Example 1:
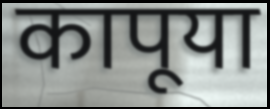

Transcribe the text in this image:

कापूया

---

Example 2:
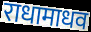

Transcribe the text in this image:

राधामाधव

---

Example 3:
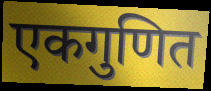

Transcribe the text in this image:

एकगुणित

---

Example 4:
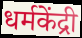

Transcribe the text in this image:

धर्मकेंद्री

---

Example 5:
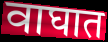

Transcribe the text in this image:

वाघात